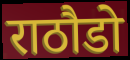
राठौडो